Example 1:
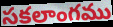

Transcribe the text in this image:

సకలాంగము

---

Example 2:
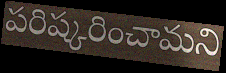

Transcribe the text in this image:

పరిష్కరించామని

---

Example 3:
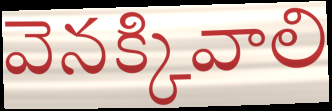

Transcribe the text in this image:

వెనక్కివాలి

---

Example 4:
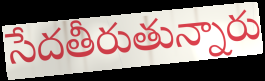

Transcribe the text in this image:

సేదతీరుతున్నారు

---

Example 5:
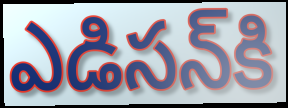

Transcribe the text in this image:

ఎడిసన్‌కి